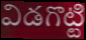
విడగొట్టి